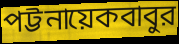
পট্টনায়েকবাবুর